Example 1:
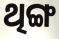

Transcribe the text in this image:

ଥିଙ୍ଗ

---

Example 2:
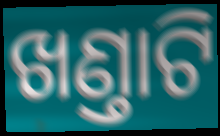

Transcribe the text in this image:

ଖଣ୍ତାଟି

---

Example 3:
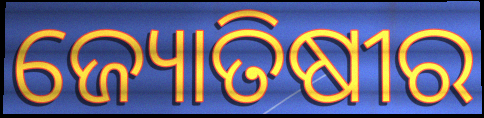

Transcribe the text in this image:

ଜ୍ୟୋତିଷୀର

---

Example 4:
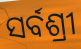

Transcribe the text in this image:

ସର୍ବଶ୍ରୀ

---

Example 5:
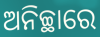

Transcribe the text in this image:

ଅନିଚ୍ଛାରେ